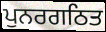
ਪੁਨਰਗਠਿਤ